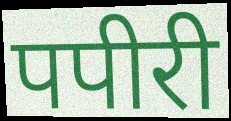
पपीरी